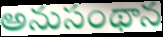
అనుసంథాన